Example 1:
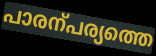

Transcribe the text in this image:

പാരന്പര്യത്തെ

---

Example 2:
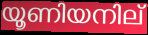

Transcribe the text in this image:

യൂണിയനില്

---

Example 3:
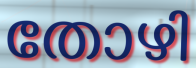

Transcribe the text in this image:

തോഴി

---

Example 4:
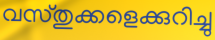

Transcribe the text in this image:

വസ്തുക്കളെക്കുറിച്ചു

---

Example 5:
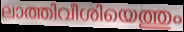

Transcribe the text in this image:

ലാത്തിവീശിയെത്തും